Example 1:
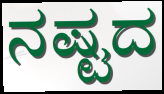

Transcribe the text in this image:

ನಷ್ಟದ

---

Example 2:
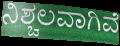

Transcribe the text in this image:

ನಿಶ್ಚಲವಾಗಿವೆ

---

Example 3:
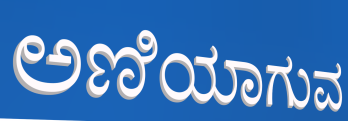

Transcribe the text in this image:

ಅಣಿಯಾಗುವ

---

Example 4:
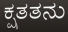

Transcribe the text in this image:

ಕ್ಷತತನು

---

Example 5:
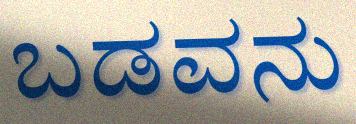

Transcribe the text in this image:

ಬಡವನು